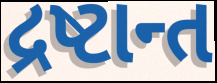
દ્રષ્ટાન્ત